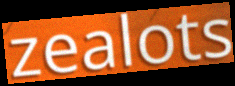
zealots